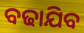
ବଢାଯିବ